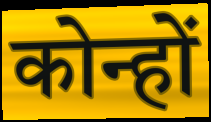
कोन्हों